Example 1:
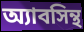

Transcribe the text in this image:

অ্যাবসিন্থ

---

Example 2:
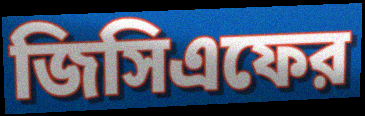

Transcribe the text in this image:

জিসিএফের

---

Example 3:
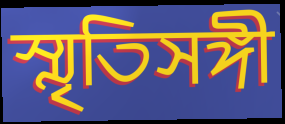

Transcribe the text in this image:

স্মৃতিসঙ্গী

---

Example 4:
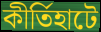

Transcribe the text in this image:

কীর্তিহাটে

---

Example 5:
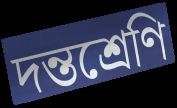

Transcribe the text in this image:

দন্তশ্রেণি